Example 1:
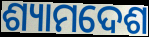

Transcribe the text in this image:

ଶ୍ୟାମଦେଶ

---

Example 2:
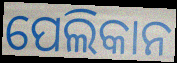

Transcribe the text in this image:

ପେଲିକାନ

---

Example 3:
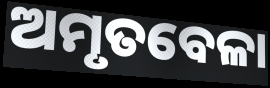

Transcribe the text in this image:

ଅମୃତବେଳା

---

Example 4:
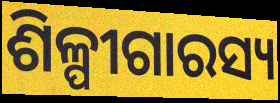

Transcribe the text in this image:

ଶିଳ୍ପୀଗାରସ୍ୟ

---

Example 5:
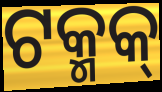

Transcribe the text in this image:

ଟକ୍ମକ୍